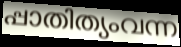
പ്പാതിത്യംവന്ന